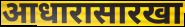
आधारासारखा